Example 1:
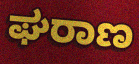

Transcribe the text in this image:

ಘರಾಣ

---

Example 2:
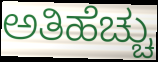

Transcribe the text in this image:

ಅತಿಹೆಚ್ಚು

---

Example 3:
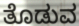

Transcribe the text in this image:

ತೊಡುವ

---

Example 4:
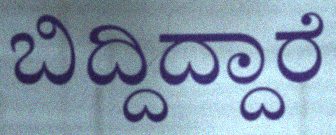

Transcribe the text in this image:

ಬಿದ್ದಿದ್ದಾರೆ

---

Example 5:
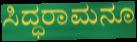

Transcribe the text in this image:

ಸಿದ್ಧರಾಮನೂ